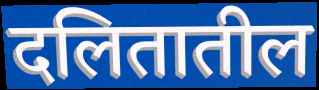
दलितातील